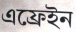
এফ্রেইন